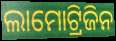
ଲାମୋଟ୍ରିଜିନ